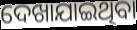
ଦେଖାଯାଇଥିବା